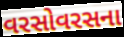
વરસોવરસના